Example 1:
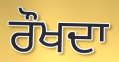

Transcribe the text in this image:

ਰੌਖਦਾ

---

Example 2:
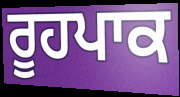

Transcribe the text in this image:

ਰੂਹਪਾਕ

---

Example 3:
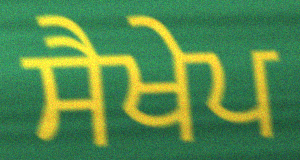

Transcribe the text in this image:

ਸੈਖੇਪ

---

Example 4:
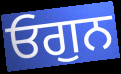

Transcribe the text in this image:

ਓਗੁਨ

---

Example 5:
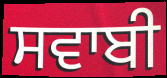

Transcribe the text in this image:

ਸਵਾਬੀ